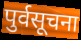
पुर्वसूचना